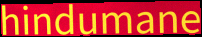
hindumane